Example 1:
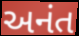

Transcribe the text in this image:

અનંત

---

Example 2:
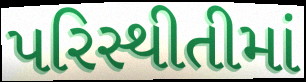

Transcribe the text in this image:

પરિસ્થીતીમાં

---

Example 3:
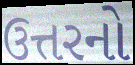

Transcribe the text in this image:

ઉત્તરનો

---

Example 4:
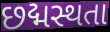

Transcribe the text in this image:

છદ્મસ્થતા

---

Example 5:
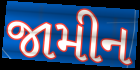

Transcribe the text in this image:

જામીન